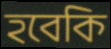
হবেকি